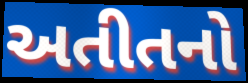
અતીતનો